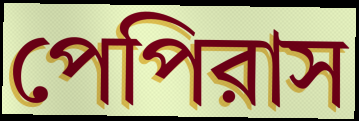
পেপিরাস